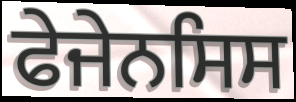
ਫੇਜੇਨਸਿਸ